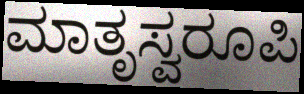
ಮಾತೃಸ್ವರೂಪಿ